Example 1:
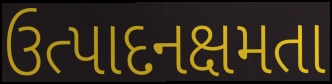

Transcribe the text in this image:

ઉત્પાદનક્ષમતા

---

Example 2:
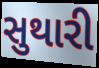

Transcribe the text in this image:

સુથારી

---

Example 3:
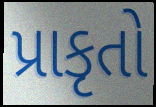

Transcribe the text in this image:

પ્રાકૃતો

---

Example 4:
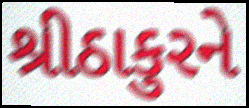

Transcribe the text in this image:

શ્રીઠાકુરને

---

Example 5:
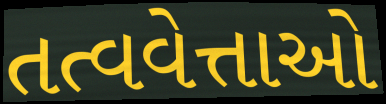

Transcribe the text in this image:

તત્વવેત્તાઓ